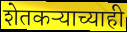
शेतकऱ्याच्याही